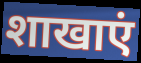
शाखाएं